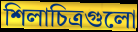
শিলাচিত্রগুলো